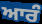
ਆਰੰ